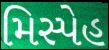
મિસ્પેહ